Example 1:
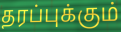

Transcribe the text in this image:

தரப்புக்கும்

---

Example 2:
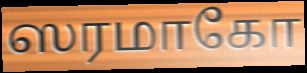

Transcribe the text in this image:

ஸரமாகோ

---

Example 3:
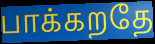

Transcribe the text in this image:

பாக்கறதே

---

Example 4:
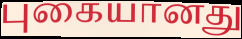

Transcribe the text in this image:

புகையானது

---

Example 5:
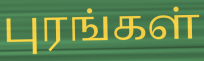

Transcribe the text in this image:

புரங்கள்